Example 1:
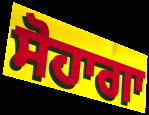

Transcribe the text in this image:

ਸੋਹਾਗਾ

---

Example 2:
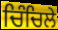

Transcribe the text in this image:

ਚਿੰਚਿਲੇ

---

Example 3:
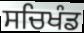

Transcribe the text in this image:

ਸਚਿਖੰਡ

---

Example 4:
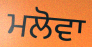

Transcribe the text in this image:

ਮਲੋਵਾ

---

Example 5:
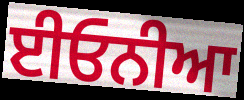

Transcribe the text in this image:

ਈਓਨੀਆ